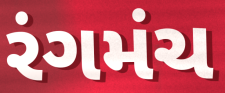
રંગમંચ